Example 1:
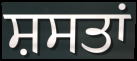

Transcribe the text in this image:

ਸ਼ਸਤਾਂ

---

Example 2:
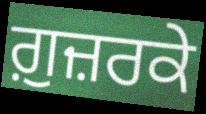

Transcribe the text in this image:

ਗ਼ੁਜ਼ਰਕੇ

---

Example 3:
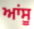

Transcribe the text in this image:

ਆਂਸੂ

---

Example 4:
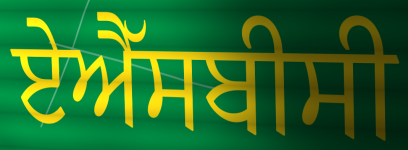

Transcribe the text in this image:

ਏਐੱਸਬੀਸੀ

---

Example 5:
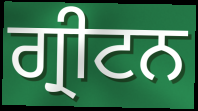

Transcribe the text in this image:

ਗ੍ਰੀਟਨ